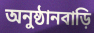
অনুষ্ঠানবাড়ি